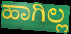
ಹಾಗಿಲ್ಲ